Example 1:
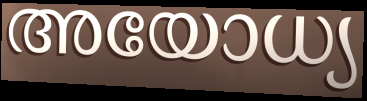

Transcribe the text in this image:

അയോധ്യ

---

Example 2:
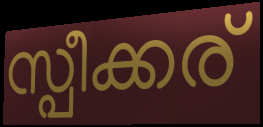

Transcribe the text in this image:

സ്പീക്കര്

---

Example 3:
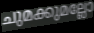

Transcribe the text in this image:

ചുമക്കുമല്ലോ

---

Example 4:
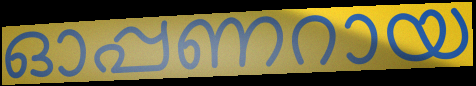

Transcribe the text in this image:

ഓപ്പണറായ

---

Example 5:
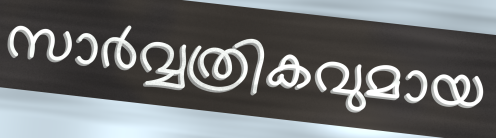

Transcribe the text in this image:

സാർവ്വത്രികവുമായ